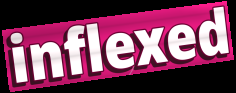
inflexed